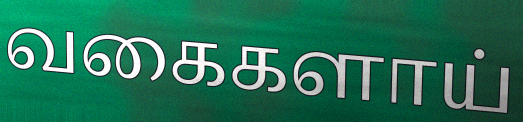
வகைகளாய்